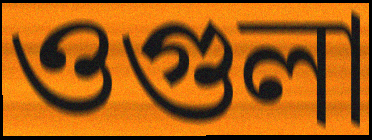
ওগুলা